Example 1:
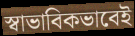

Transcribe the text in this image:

স্বাভাবিকভাবেই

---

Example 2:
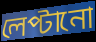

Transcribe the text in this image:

লেপ্টানো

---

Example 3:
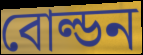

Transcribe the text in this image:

বোল্ডন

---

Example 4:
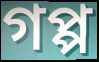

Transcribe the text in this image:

গপ্প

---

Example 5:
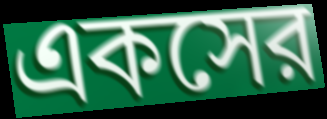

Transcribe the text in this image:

একসের